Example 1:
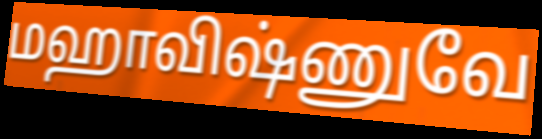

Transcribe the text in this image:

மஹாவிஷ்ணுவே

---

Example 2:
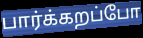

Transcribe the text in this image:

பார்க்கறப்போ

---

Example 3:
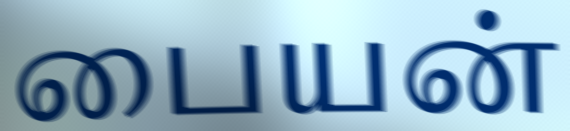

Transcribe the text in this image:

பையன்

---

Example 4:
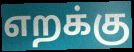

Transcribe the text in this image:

எறக்கு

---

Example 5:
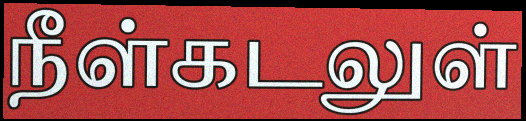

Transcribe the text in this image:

நீள்கடலுள்